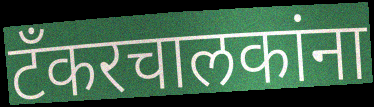
टँकरचालकांना